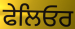
ਫੇਲਿਓਰ